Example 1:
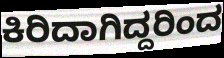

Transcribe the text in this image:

ಕಿರಿದಾಗಿದ್ದರಿಂದ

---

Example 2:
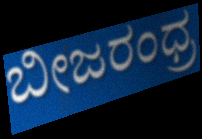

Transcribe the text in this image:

ಬೀಜರಂಧ್ರ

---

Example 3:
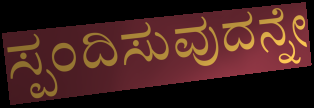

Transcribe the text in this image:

ಸ್ಪಂದಿಸುವುದನ್ನೇ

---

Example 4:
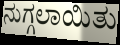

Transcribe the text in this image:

ನುಗ್ಗಲಾಯಿತು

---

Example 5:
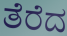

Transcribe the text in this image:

ತೆರೆದ